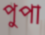
পুপা